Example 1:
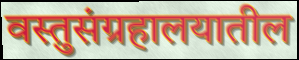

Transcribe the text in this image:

वस्तुसंग्रहालयातील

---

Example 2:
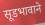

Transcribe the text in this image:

सूडभावाने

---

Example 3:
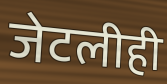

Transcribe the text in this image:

जेटलीही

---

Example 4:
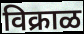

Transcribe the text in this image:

विक्राळ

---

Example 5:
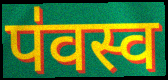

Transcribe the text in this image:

प॑वस्व